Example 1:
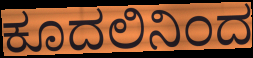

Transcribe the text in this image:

ಕೂದಲಿನಿಂದ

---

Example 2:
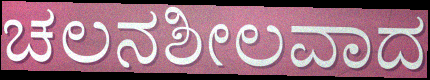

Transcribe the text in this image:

ಚಲನಶೀಲವಾದ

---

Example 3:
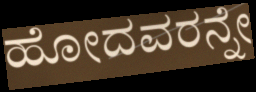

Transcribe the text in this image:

ಹೋದವರನ್ನೇ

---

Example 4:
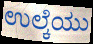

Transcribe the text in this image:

ಉಲ್ಕೆಯು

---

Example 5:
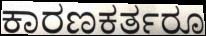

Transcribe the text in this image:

ಕಾರಣಕರ್ತರೂ